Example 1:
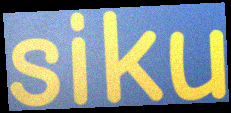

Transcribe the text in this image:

siku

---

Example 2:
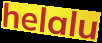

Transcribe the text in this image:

helalu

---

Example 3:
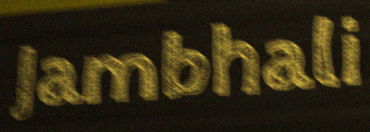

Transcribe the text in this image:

Jambhali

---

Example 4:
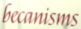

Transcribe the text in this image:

becanisms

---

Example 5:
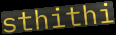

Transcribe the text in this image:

sthithi